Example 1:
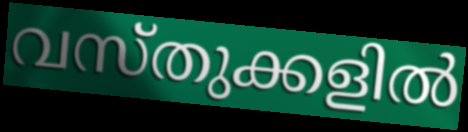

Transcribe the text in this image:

വസ്തുക്കളിൽ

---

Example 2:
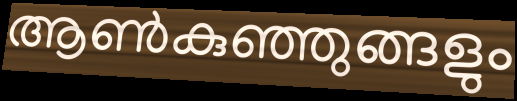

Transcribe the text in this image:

ആൺകുഞ്ഞുങ്ങളും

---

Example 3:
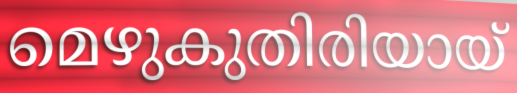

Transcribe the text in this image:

മെഴുകുതിരിയായ്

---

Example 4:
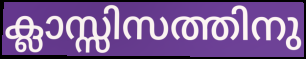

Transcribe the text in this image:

ക്ലാസ്സിസത്തിനു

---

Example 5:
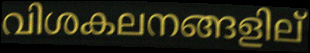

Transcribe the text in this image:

വിശകലനങ്ങളില്